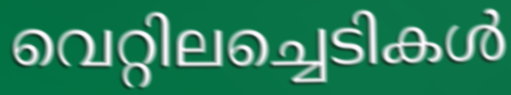
വെറ്റിലച്ചെടികൾ